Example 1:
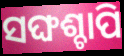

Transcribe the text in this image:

ସଙ୍ଘଶ୍ଚାପି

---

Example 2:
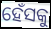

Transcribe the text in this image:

ହେଁସକୁ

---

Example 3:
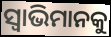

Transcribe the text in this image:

ସ୍ୱାଭିମାନକୁ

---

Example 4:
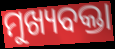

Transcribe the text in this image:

ମୁଖ୍ୟବକ୍ତା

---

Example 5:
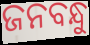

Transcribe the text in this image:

ଜନବନ୍ଧୁ